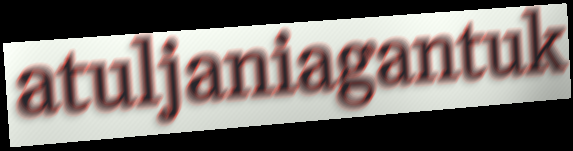
atuljaniagantuk